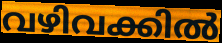
വഴിവക്കിൽ